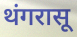
थंगरासू